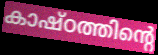
കാഷ്ഠത്തിന്റെ